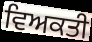
ਵਿਅਕਤੀ